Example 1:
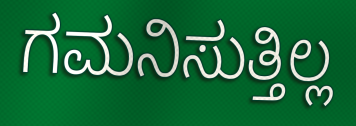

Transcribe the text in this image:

ಗಮನಿಸುತ್ತಿಲ್ಲ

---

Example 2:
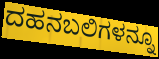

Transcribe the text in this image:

ದಹನಬಲಿಗಳನ್ನೂ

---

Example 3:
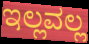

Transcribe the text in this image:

ಇಲ್ಲವಲ್ಲ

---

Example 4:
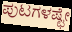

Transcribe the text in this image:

ಪುಟಗಳಷ್ಟೇ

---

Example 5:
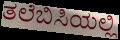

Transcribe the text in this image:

ತಲೆಬಿಸಿಯಲ್ಲಿ